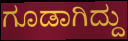
ಗೂಡಾಗಿದ್ದು